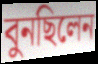
বুনছিলেন